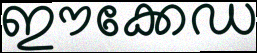
ഈക്കേഡ